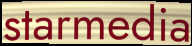
starmedia